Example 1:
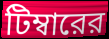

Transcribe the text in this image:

টিম্বারের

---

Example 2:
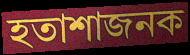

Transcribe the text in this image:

হতাশাজনক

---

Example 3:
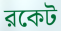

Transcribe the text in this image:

রকেট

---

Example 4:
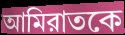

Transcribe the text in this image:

আমিরাতকে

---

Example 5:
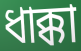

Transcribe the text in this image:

ধাক্কা